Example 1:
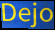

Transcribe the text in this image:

Dejo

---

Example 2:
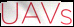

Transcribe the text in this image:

UAVs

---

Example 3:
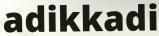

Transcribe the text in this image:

adikkadi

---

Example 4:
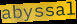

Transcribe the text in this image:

abyssal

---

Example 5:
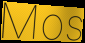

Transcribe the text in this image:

Mos